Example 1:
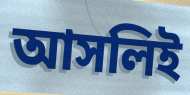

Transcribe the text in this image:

আসলিই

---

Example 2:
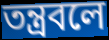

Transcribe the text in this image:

তন্ত্রবলে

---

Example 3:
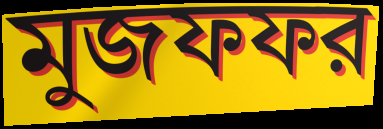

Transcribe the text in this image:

মুজফফর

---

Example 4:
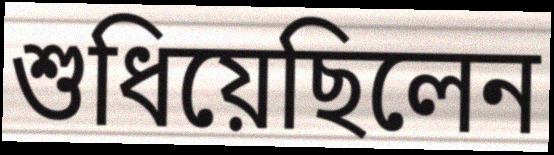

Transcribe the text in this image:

শুধিয়েছিলেন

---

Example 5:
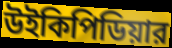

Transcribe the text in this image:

উইকিপিডিয়ার